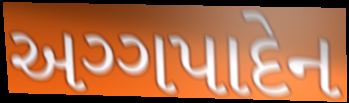
અગ્ગપાદેન